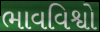
ભાવવિશ્વો